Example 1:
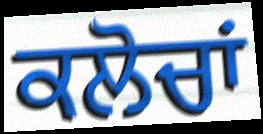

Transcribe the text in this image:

ਕਲੋਚਾਂ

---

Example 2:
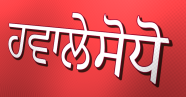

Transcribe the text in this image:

ਹਵਾਲੇਸੋਧੋ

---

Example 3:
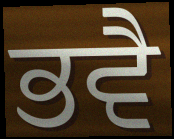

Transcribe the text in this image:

ਭਵੈ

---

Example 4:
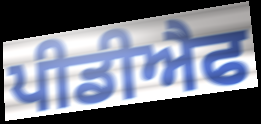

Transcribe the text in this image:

ਪੀਡੀਐਫ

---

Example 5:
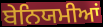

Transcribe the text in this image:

ਬੇਨਿਯਮੀਆਂ